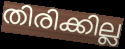
തിരിക്കില്ല